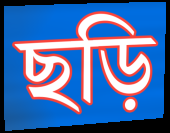
ছড়ি